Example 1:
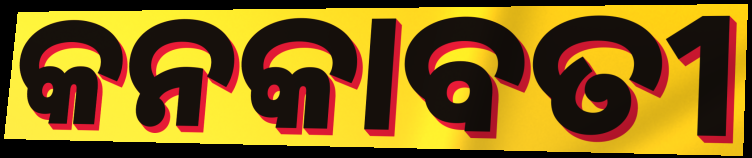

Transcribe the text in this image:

କନକାବତୀ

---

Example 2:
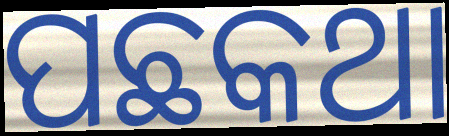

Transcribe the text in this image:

ପଛକଥା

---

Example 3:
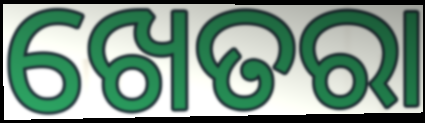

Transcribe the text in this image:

ଖେତରା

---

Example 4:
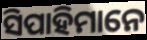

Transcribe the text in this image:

ସିପାହିମାନେ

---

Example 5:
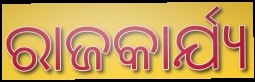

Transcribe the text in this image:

ରାଜକାର୍ଯ୍ୟ